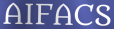
AIFACS